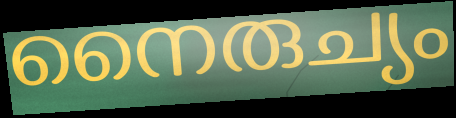
നൈരുച്യം